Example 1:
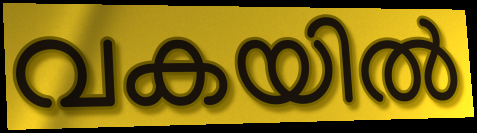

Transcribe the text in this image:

വകയിൽ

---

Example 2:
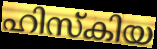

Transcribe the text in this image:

ഹിസ്കിയ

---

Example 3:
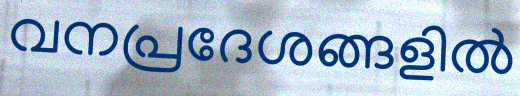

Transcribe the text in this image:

വനപ്രദേശങ്ങളിൽ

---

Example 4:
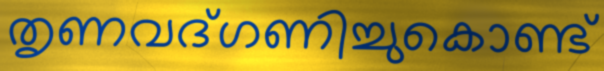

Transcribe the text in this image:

തൃണവദ്ഗണിച്ചുകൊണ്ട്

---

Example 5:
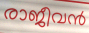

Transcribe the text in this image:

രാജീവൻ